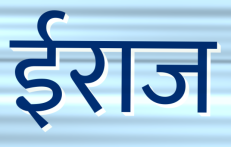
ईराज